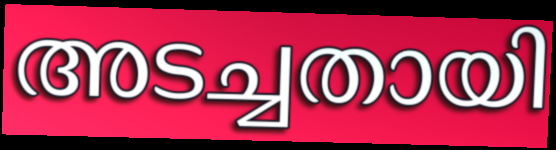
അടച്ചതായി